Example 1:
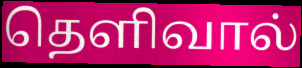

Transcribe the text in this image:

தெளிவால்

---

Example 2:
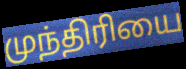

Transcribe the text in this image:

முந்திரியை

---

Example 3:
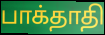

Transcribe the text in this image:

பாக்தாதி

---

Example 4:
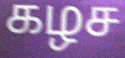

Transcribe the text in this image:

கழச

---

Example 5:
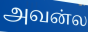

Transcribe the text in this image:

அவன்ல